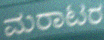
ಮರಾಟರ